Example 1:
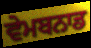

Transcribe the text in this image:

ਵੇਮਬਨਾਡ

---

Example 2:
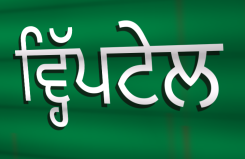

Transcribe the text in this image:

ਵ੍ਹਿੱਪਟੇਲ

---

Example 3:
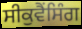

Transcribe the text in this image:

ਸੀਕੁਵੈਂਸਿੰਗ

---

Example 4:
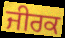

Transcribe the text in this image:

ਜੀਰਕ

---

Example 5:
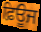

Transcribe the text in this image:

ਫ਼ਿਊਜ